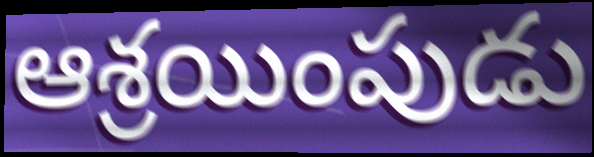
ఆశ్రయింపుడు